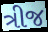
ત્રીજ